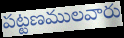
పట్టణములవారు